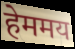
हेममय